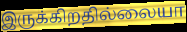
இருக்கிறதில்லையா